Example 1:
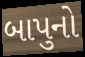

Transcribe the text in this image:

બાપુનો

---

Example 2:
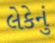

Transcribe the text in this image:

લેકેનું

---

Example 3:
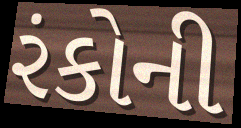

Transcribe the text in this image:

રંકોની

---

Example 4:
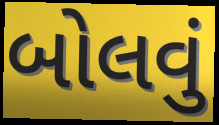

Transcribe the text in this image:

બોલવું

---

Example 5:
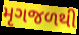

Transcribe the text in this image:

મૃગજળથી